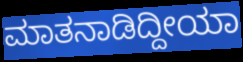
ಮಾತನಾಡಿದ್ದೀಯಾ